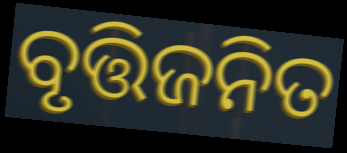
ବୃତ୍ତିଜନିତ